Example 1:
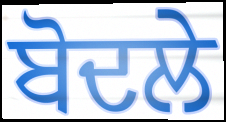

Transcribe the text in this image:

ਬੋਦਲੇ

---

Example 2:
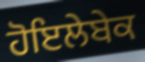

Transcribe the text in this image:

ਹੋਇਲੇਬੇਕ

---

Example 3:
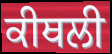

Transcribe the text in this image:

ਕੀਥਲੀ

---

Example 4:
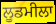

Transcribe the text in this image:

ਲੂਡਮੀਲਾ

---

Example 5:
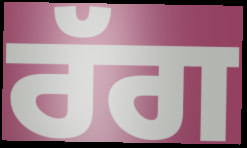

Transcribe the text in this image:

ਰੱਗ